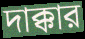
দাক্কার